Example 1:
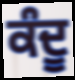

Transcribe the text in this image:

ਕੰਦੂ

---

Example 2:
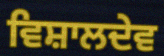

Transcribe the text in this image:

ਵਿਸ਼ਾਲਦੇਵ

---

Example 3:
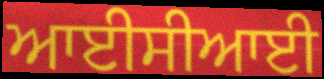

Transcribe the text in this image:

ਆਈਸੀਆਈ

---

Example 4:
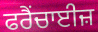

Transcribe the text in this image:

ਫਰੈਂਚਾਈਜ਼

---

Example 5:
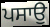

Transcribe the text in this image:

ਪਸਾਉ